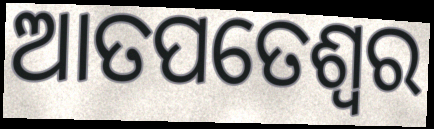
ଆତପତେଶ୍ୱର